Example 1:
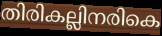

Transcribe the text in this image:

തിരികല്ലിനരികെ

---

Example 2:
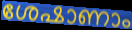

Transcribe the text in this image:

ശേഷാണാം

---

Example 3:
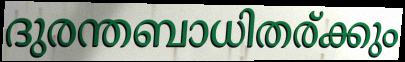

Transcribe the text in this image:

ദുരന്തബാധിതര്ക്കും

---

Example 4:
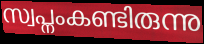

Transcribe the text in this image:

സ്വപ്നംകണ്ടിരുന്നു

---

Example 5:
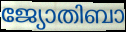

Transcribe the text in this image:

ജ്യോതിബാ